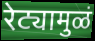
रेट्यामुळं